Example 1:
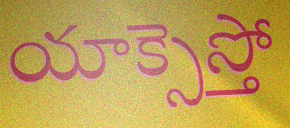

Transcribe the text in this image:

యాక్సెస్తో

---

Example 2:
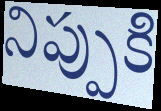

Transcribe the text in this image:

నిప్పుకి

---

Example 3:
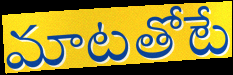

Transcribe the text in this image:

మాటతోటే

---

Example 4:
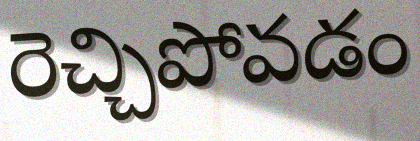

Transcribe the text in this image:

రెచ్చిపోవడం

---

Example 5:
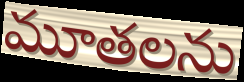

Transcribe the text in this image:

మూతలను